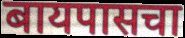
बायपासचा